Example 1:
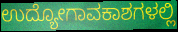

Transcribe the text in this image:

ಉದ್ಯೋಗಾವಕಾಶಗಳಲ್ಲಿ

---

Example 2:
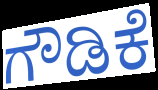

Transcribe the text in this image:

ಗೌಡಿಕೆ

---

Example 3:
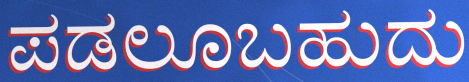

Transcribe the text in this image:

ಪಡಲೂಬಹುದು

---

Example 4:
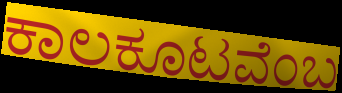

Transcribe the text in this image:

ಕಾಲಕೂಟವೆಂಬ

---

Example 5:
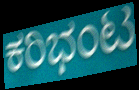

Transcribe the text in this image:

ಕರಿಭಂಟ